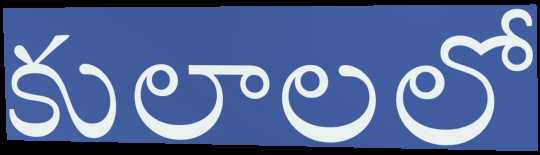
కులాలలో